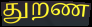
துறண